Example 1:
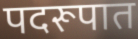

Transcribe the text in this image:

पदरूपात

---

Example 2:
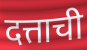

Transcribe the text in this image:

दत्ताची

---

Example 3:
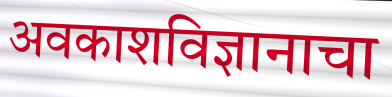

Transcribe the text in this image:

अवकाशविज्ञानाचा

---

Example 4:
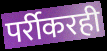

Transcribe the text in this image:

पर्रीकरही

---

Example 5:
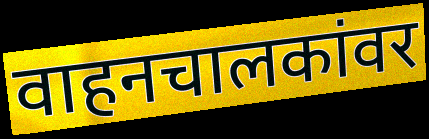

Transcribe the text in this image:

वाहनचालकांवर